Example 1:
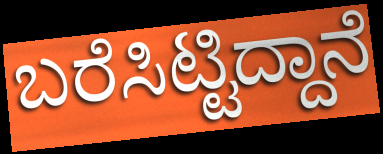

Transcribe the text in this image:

ಬರೆಸಿಟ್ಟಿದ್ದಾನೆ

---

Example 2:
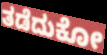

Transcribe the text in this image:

ತಡೆದುಕೋ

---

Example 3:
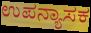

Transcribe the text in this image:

ಉಪನ್ಯಾಸಕ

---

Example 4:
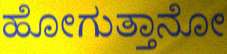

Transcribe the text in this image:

ಹೋಗುತ್ತಾನೋ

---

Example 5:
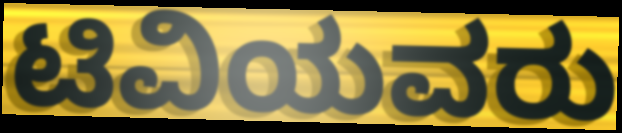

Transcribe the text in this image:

ಟಿವಿಯವರು